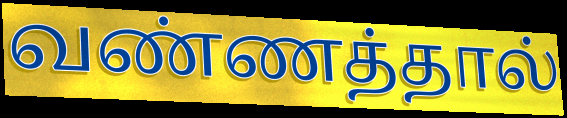
வண்ணத்தால்